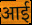
आई